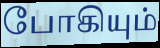
போகியும்